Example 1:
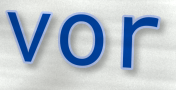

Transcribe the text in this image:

vor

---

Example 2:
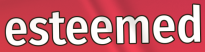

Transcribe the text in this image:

esteemed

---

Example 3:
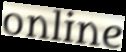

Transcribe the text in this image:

online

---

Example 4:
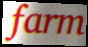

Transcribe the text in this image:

farm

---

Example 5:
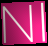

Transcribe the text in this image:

Nl